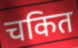
चकित